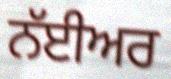
ਨੱਈਅਰ